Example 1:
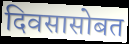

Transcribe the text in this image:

दिवसासोबत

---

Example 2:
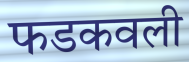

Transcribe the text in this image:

फडकवली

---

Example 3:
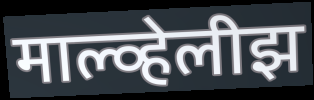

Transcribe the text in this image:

माल्व्हेलीझ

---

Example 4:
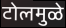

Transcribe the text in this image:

टोलमुळे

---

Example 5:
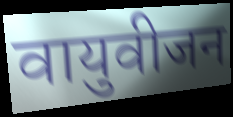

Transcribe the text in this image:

वायुवीजन